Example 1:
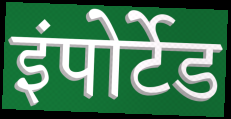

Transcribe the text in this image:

इंपोर्टेड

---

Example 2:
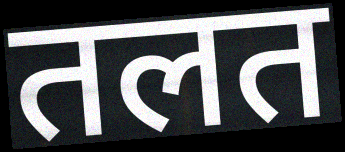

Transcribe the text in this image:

तलत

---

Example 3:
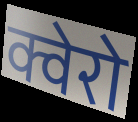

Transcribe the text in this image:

क्वेरो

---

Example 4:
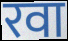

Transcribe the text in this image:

रवा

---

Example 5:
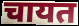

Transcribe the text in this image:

चायत